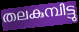
തലകുമ്പിട്ടു